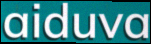
aiduva